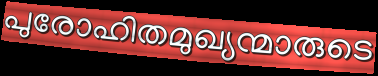
പുരോഹിതമുഖ്യന്മാരുടെ